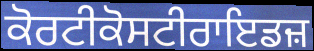
ਕੋਰਟੀਕੋਸਟੀਰਾਇਡਜ਼